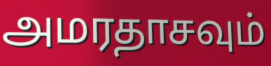
அமரதாசவும்